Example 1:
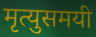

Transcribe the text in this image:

मृत्युसमयी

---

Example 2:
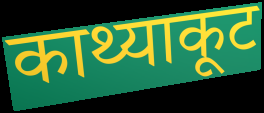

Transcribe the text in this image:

काथ्याकूट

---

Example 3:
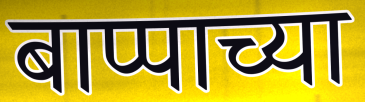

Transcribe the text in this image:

बाप्पाच्या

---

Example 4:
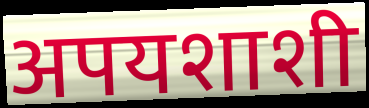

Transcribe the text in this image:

अपयशाशी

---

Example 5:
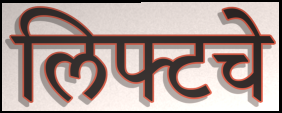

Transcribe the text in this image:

लिफ्टचे